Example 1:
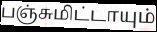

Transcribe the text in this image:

பஞ்சுமிட்டாயும்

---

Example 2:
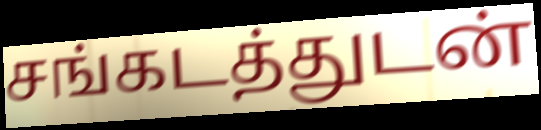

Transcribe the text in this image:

சங்கடத்துடன்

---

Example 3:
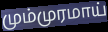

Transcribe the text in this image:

மும்முரமாய்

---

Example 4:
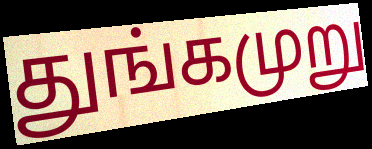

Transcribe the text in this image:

துங்கமுறு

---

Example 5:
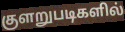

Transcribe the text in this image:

குளறுபடிகளில்